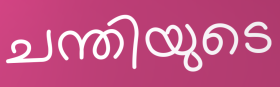
ചന്തിയുടെ